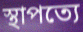
স্থাপত্যে